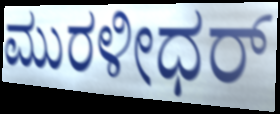
ಮುರಳೀಧರ್